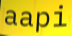
aapi